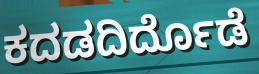
ಕದಡದಿರ್ದೊಡೆ